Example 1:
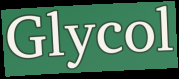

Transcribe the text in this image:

Glycol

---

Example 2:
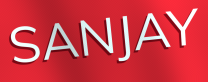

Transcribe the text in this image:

SANJAY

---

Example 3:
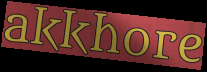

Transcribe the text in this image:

akkhore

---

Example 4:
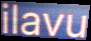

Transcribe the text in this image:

ilavu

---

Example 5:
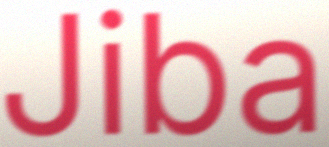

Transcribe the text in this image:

Jiba